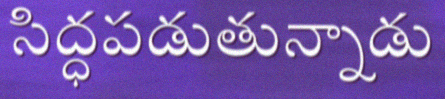
సిద్ధపడుతున్నాడు